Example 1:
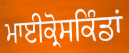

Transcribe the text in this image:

ਮਾਈਕ੍ਰੋਸਕਿੰਡਾਂ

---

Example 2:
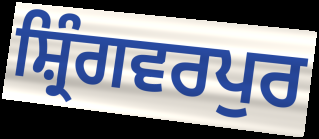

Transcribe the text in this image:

ਸ਼੍ਰਿੰਗਵਰਪੁਰ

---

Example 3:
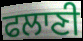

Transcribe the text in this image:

ਫਲਾਣੀ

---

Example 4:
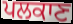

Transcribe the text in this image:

ਪਲਕਾਣ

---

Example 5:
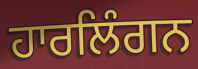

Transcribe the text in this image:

ਹਾਰਲਿੰਗਨ